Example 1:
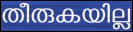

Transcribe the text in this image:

തീരുകയില്ല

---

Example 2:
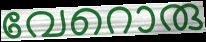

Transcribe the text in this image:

വേറൊരു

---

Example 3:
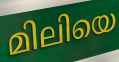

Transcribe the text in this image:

മിലിയെ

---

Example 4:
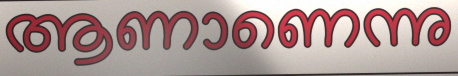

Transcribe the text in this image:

ആണാണെന്നു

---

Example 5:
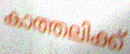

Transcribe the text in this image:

കാത്തലിക്ക്